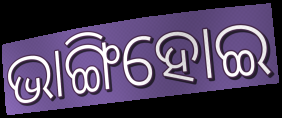
ଭାଙ୍ଗିହୋଇ